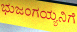
ಭುಜಂಗಯ್ಯನಿಗೆ